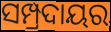
ସମ୍ପ୍ରଦାୟର